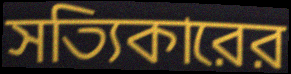
সত্যিকারের